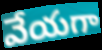
వేయగా